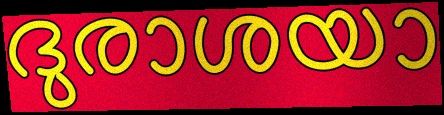
ദുരാശയാ